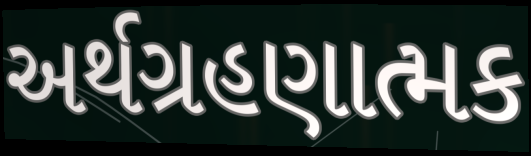
અર્થગ્રહણાત્મક